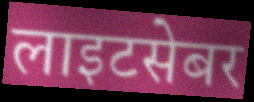
लाइटसेबर